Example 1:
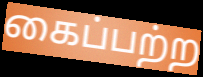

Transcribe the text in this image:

கைப்பற்ற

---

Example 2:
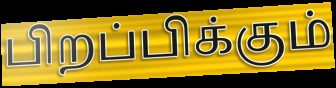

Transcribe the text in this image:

பிறப்பிக்கும்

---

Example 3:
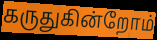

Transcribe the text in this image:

கருதுகின்றோம்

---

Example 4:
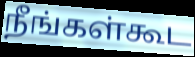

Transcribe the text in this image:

நீங்கள்கூட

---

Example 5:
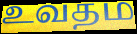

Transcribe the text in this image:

உவதம